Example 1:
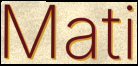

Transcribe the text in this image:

Mati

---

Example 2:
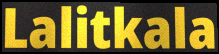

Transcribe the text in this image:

Lalitkala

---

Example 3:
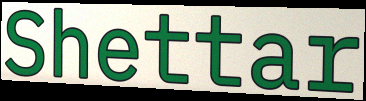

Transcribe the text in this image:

Shettar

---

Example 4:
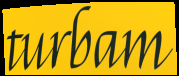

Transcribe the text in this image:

turbam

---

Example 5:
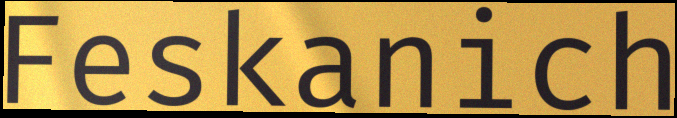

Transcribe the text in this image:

Feskanich